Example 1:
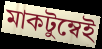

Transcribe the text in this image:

মাকটুম্বেই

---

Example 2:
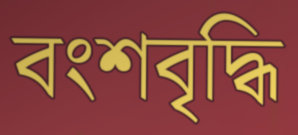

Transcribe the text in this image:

বংশবৃদ্ধি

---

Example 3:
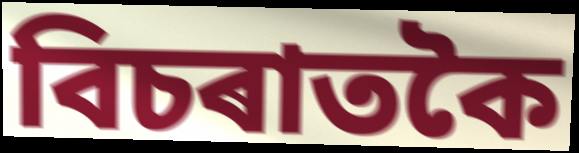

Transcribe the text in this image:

বিচৰাতকৈ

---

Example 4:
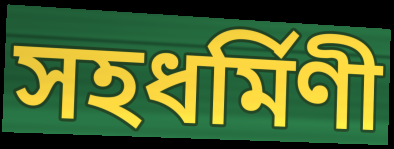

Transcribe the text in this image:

সহধৰ্মিণী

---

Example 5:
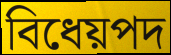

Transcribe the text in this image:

বিধেয়পদ